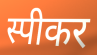
स्पीकर